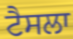
ਟੈਸਲਾ